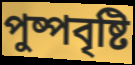
পুষ্পবৃষ্টি